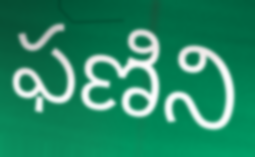
ఫణిని